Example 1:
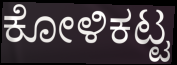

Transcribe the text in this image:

ಕೋಳಿಕಟ್ಟ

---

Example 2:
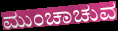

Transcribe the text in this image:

ಮುಂಚಾಚುವ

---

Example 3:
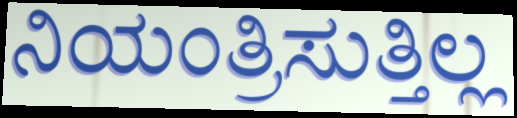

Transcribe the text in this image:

ನಿಯಂತ್ರಿಸುತ್ತಿಲ್ಲ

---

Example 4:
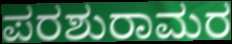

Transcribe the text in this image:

ಪರಶುರಾಮರ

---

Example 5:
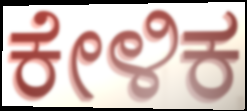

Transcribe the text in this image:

ಕೇಳಿಕ